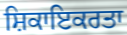
ਸ਼ਿਕਾਇਕਰਤਾ